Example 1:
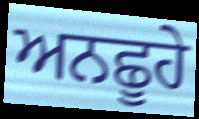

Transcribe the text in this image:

ਅਨਛੂਹੇ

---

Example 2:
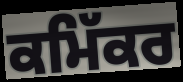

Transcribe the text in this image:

ਕਮਿੱਕਰ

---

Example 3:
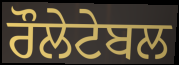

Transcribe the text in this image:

ਰੌਲੇਟੇਬਲ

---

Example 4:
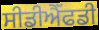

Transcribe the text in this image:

ਸੀਡੀਐੱਫਡੀ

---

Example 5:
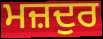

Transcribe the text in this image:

ਮਜ਼ਦੁਰ